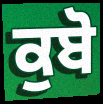
ਕੁਬੋ